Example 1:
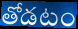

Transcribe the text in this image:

తోడటం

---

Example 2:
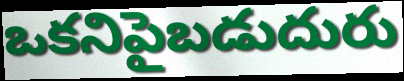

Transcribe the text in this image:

ఒకనిపైబడుదురు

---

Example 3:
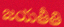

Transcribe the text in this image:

జయతీతి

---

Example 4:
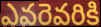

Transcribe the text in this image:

ఎవరెవరికి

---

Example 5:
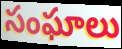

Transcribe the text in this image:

సంఘాలు